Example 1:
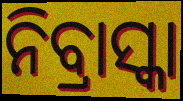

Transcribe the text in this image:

ନିବ୍ରାସ୍କା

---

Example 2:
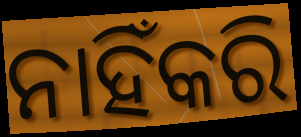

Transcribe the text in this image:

ନାହିଁକରି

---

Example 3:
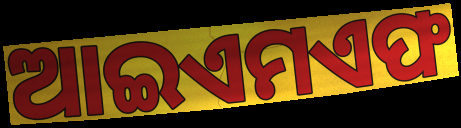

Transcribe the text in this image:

ଆଇଏମଏଫ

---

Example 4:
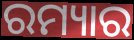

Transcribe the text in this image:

ରମ୍ୟାର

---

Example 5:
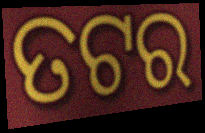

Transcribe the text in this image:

ତଟର